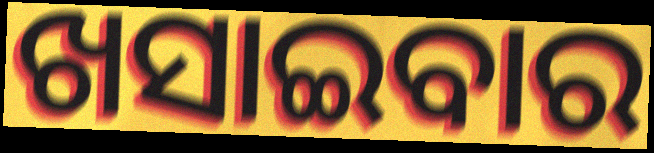
ଖସାଇବାର